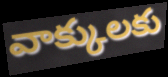
వాక్కులకు